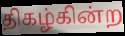
திகழ்கின்ற